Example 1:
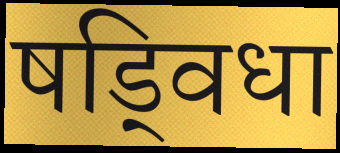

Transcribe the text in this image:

षड्विधा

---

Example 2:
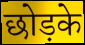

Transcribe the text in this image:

छोड़के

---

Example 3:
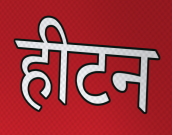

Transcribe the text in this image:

हीटन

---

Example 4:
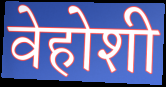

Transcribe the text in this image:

वेहोशी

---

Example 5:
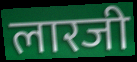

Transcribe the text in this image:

लारजी